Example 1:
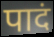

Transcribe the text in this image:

पादं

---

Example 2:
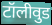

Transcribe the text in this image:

टॉलीवुड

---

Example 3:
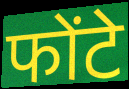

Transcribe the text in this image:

फोंटे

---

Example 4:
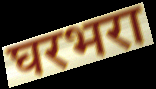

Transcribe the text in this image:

घरभरा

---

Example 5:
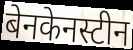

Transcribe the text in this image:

बेनकेनस्टीन